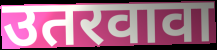
उतरवावा